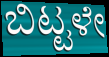
ಬಿಟ್ಟಳೇ